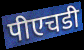
पीएचडी